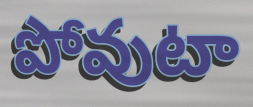
పోవుటా